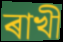
ৰাখী